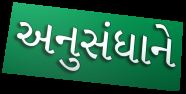
અનુસંધાને